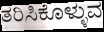
ತರಿಸಿಕೊಳ್ಳುವ